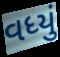
વધ્યું